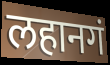
लहानगं